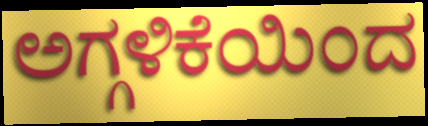
ಅಗ್ಗಳಿಕೆಯಿಂದ